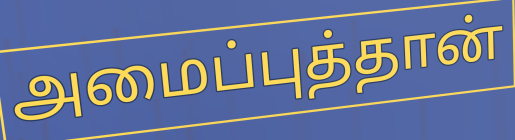
அமைப்புத்தான்